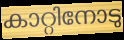
കാറ്റിനോടു